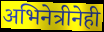
अभिनेत्रीनेही